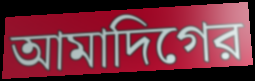
আমাদিগের